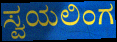
ಸ್ವಯಲಿಂಗ